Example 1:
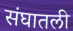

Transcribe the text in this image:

संघातली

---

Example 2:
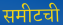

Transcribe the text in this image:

समीटची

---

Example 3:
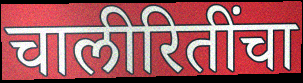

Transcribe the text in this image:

चालीरितींचा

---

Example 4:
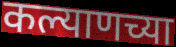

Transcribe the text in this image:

कल्याणच्या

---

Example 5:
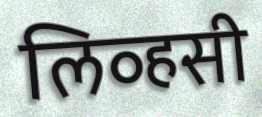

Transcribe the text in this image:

लिव्हसी